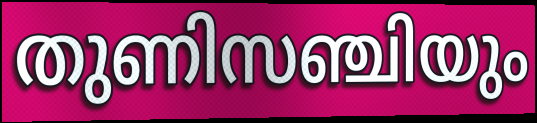
തുണിസഞ്ചിയും